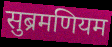
सुब्रमणियम